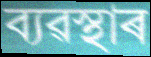
ব্যৱস্থাৰ